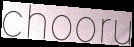
chooru